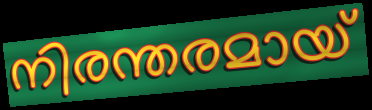
നിരന്തരമായ്